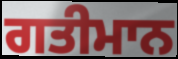
ਗਤੀਮਾਨ